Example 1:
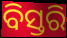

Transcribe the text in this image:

ବିସ୍ତରି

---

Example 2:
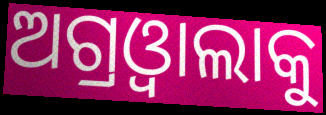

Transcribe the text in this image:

ଅଗ୍ରଓ୍ୱାଲାକୁ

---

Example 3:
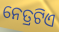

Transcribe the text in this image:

ନେତ୍ରଟିଏ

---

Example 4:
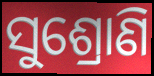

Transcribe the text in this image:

ସୁଶ୍ରୋଣି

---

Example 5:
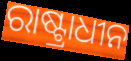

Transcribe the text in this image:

ରାଷ୍ଟ୍ରାଧୀନ